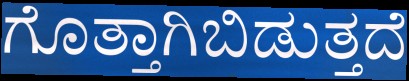
ಗೊತ್ತಾಗಿಬಿಡುತ್ತದೆ